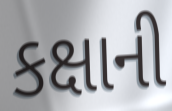
કક્ષાની